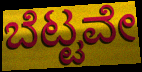
ಬೆಟ್ಟವೇ